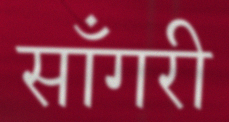
साँगरी